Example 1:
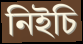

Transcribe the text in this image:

নিইচি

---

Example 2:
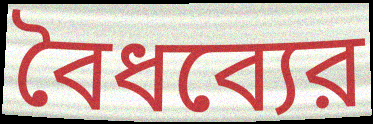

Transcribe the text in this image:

বৈধব্যের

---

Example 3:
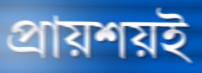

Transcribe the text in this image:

প্রায়শয়ই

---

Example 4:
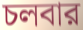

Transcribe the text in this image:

চলবার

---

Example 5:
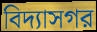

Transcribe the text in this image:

বিদ্যাসগর